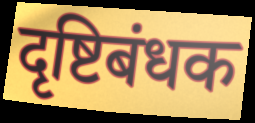
दृष्टिबंधक